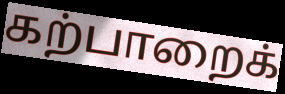
கற்பாறைக்